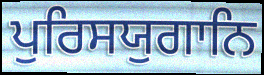
ਪੁਰਿਸਯੁਗਾਨਿ